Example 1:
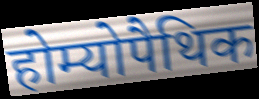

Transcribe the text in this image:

होम्योपैथिक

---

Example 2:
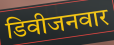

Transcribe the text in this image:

डिवीजनवार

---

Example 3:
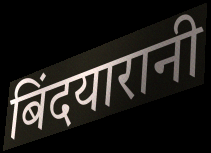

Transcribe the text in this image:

बिंदयारानी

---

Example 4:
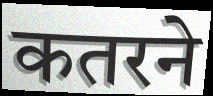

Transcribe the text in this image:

कतरने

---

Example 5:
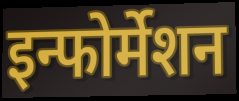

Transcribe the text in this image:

इन्फोर्मेशन